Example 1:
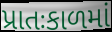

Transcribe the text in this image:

પ્રાતઃકાળમાં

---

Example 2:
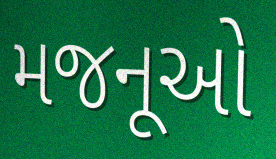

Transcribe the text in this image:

મજનૂઓ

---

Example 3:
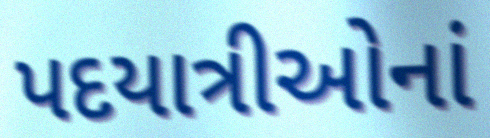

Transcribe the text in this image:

પદયાત્રીઓનાં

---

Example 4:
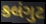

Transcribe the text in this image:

કલંગુટ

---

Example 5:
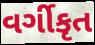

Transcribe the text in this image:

વર્ગીકૃત